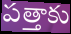
పత్తాకు